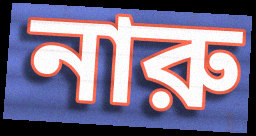
নারু